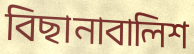
বিছানাবালিশ